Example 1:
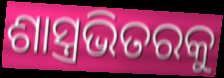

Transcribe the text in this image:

ଶାସ୍ତ୍ରଭିତରକୁ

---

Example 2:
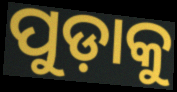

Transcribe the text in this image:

ପୁଡ଼ାକୁ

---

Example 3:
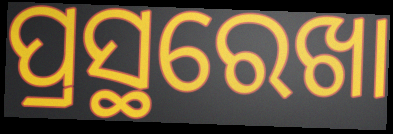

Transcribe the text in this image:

ପ୍ରସ୍ଥରେଖା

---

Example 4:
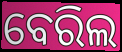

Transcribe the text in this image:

ବେରିଲ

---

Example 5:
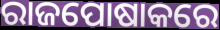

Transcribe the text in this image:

ରାଜପୋଷାକରେ